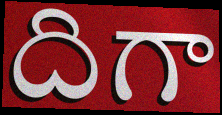
దిగా